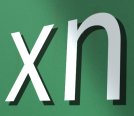
xn